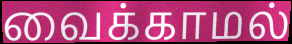
வைக்காமல்